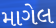
માગેલ